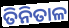
ତିନିତାଳ